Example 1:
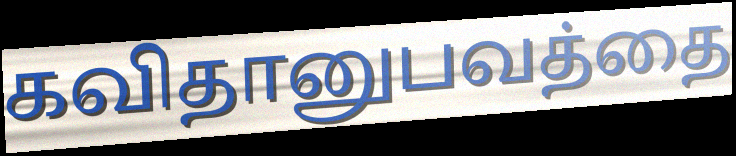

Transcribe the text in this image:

கவிதானுபவத்தை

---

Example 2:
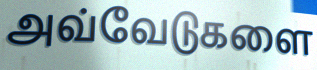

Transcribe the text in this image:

அவ்வேடுகளை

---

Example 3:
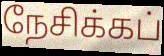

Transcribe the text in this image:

நேசிக்கப்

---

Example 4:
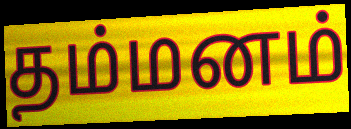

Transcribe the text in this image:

தம்மனம்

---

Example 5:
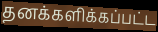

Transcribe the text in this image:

தனக்களிக்கப்பட்ட